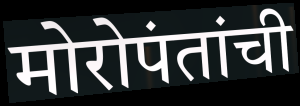
मोरोपंतांची